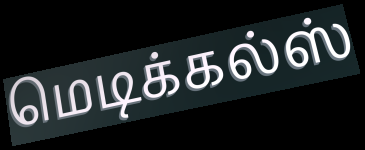
மெடிக்கல்ஸ்